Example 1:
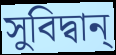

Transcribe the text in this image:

সুবিদ্বান্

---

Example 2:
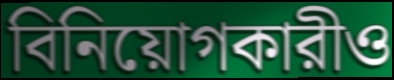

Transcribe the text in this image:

বিনিয়োগকারীও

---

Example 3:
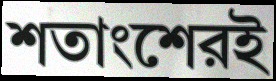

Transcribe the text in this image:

শতাংশেরই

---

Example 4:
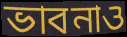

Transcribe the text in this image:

ভাবনাও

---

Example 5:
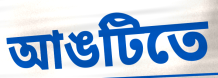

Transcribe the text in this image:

আঙটিতে